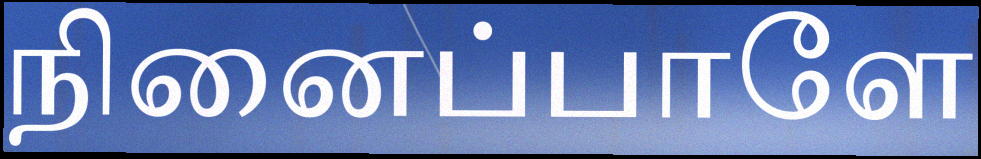
நினைப்பாளே